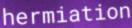
hermiation